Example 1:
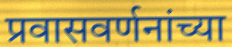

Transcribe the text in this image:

प्रवासवर्णनांच्या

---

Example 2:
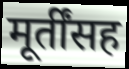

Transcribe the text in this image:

मूर्तींसह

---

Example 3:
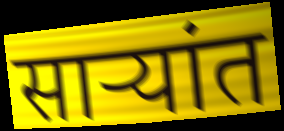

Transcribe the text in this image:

साऱ्यांत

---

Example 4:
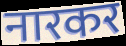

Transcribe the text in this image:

नारकर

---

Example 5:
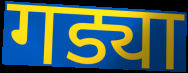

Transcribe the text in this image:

गड्या